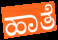
ಹಾತೆ